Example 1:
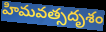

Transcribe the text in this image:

హిమవత్సదృశం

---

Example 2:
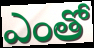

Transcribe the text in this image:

ఎంతో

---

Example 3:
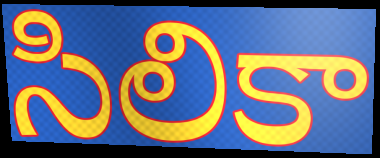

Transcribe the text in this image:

సిలికా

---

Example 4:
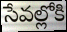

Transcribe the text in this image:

సేవల్లోకి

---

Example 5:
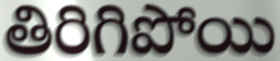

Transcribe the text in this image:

తిరిగిపోయి